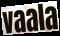
vaala